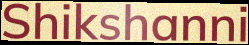
Shikshanni